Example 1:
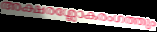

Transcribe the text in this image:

അക്ഷരശ്ലോകരംഗത്തും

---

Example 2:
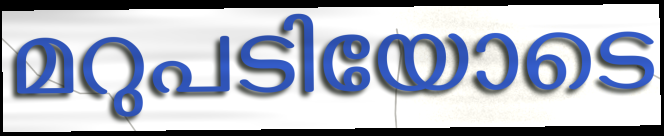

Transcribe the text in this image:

മറുപടിയോടെ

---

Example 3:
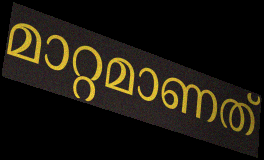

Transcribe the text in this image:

മാറ്റമാണത്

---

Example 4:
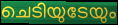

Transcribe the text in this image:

ചെടിയുടേയും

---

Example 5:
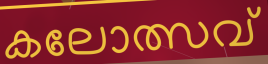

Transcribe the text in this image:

കലോത്സവ്